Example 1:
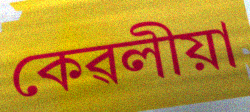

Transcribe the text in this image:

কেৱলীয়া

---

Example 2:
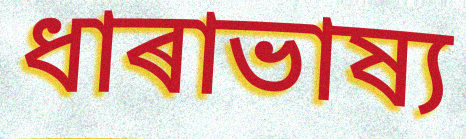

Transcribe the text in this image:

ধাৰাভাষ্য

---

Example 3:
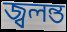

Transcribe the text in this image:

জ্বলন্ত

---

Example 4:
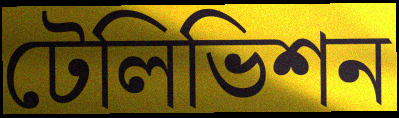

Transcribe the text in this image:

টেলিভিশন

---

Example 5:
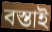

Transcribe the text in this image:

বস্তাই